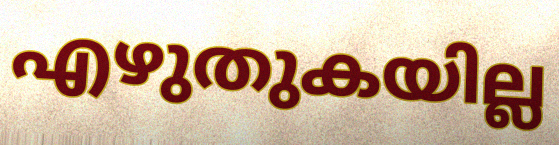
എഴുതുകയില്ല